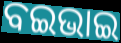
ବଇଭାଇ